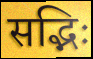
सद्भिः